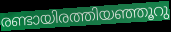
രണ്ടായിരത്തിയഞ്ഞൂറു